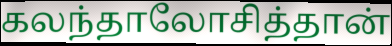
கலந்தாலோசித்தான்